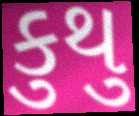
કુથુ